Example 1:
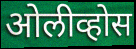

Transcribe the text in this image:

ओलीव्होस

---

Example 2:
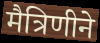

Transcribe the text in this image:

मैत्रिणीने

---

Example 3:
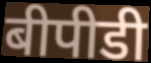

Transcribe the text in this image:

बीपीडी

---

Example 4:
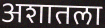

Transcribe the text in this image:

अशातला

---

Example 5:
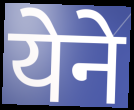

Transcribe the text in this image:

येने